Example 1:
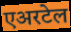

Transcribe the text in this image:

एअरटेल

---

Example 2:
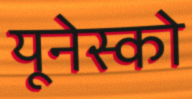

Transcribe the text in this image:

यूनेस्को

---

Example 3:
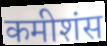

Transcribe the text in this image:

कमीशंस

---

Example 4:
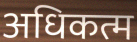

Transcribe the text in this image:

अधिकत्म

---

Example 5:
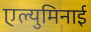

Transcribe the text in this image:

एल्युमिनाई